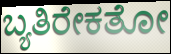
ಬ್ಯತಿರೇಕತೋ